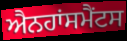
ਐਨਹਾਂਸਮੈਂਟਸ